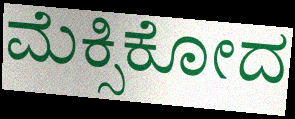
ಮೆಕ್ಸಿಕೋದ